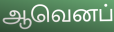
ஆவெனப்